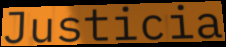
Justicia